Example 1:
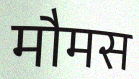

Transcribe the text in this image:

मौमस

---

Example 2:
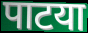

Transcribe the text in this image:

पाटया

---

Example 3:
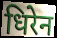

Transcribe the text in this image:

धिरेन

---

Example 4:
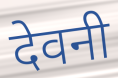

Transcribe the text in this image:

देवनी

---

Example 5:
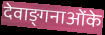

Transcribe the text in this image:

देवाङ्गनाओंके